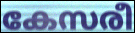
കേസരീ